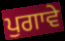
ਪੁਗਾਵੇ